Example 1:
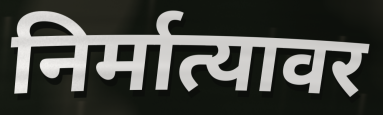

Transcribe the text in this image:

निर्मात्यावर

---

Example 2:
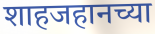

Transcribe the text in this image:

शाहजहानच्या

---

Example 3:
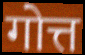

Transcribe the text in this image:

गोत्त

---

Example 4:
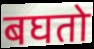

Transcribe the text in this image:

बघतो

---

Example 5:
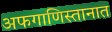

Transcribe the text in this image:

अफगाणिस्तानात